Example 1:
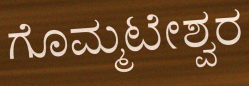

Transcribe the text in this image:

ಗೊಮ್ಮಟೇಶ್ವರ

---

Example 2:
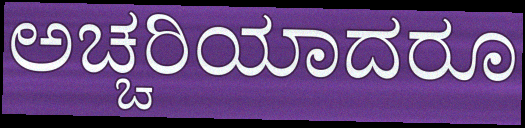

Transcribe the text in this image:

ಅಚ್ಚರಿಯಾದರೂ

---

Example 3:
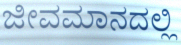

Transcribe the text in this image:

ಜೀವಮಾನದಲ್ಲಿ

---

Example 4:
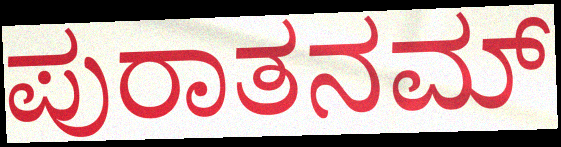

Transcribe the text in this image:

ಪುರಾತನಮ್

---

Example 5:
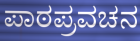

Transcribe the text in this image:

ಪಾಠಪ್ರವಚನ